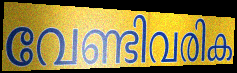
വേണ്ടിവരിക